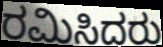
ರಮಿಸಿದರು